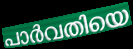
പാർവതിയെ